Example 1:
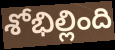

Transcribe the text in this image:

శోభిల్లింది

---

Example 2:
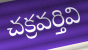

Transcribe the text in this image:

చక్రవర్తివి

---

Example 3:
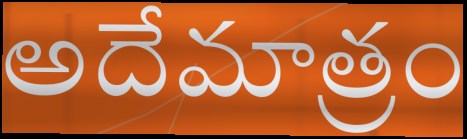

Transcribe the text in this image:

అదేమాత్రం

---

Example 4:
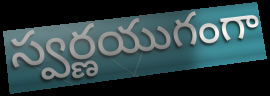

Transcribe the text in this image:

స్వర్ణయుగంగా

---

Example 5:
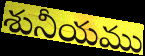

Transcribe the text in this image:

శునీయము